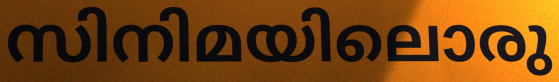
സിനിമയിലൊരു